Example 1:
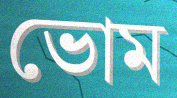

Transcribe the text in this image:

ভোম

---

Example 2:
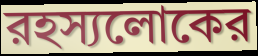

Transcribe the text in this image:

রহস্যলোকের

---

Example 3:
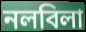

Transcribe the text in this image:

নলবিলা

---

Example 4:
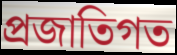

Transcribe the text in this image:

প্রজাতিগত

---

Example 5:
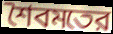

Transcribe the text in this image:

শৈবমতের